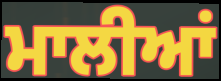
ਮਾਲੀਆਂ